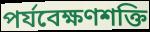
পর্যবেক্ষণশক্তি